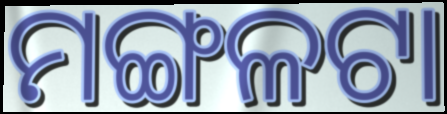
ମଙ୍ଗଳଟା